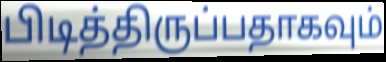
பிடித்திருப்பதாகவும்